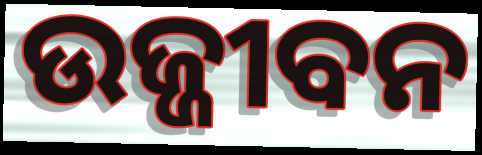
ଉଜ୍ଜୀବନ